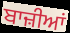
ਬਾਜ਼ੀਆਂ